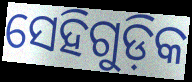
ସେହିଗୁଡ଼ିକ